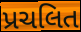
પ્રચલિત